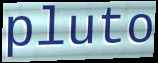
pluto